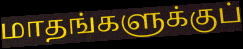
மாதங்களுக்குப்